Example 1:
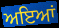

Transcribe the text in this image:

ਅਇਆਂ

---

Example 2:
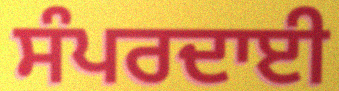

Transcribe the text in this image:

ਸੰਪਰਦਾਈ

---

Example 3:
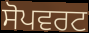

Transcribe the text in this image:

ਸੋਪਵਰਟ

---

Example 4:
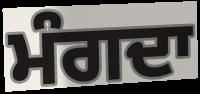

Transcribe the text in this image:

ਮੰਗਦਾ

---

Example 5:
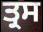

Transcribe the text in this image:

ਤ੍ਰਸ